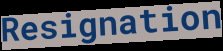
Resignation